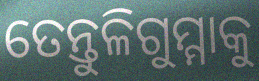
ତେନ୍ତୁଳିଗୁମ୍ମାକୁ